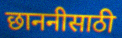
छाननीसाठी